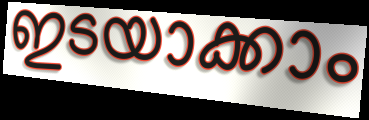
ഇടയാക്കാം